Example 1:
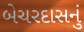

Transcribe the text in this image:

બેચરદાસનું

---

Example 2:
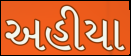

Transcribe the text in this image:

અહીયા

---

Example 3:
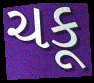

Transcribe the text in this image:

ચકૂ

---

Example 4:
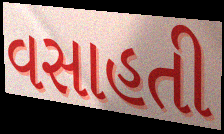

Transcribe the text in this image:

વસાહતી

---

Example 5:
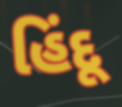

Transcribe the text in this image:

હિંદૂ